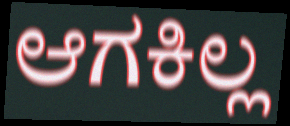
ಆಗಕಿಲ್ಲ